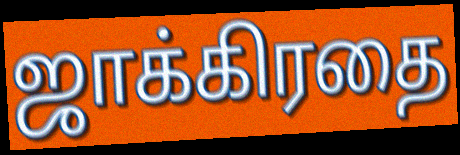
ஜாக்கிரதை